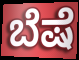
ಬೆಷೆ